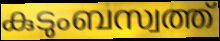
കുടുംബസ്വത്ത്